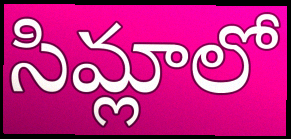
సిమ్లాలో